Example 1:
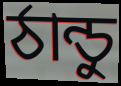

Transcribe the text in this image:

ঠান্ডু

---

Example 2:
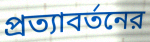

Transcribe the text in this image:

প্রত্যাবর্তনের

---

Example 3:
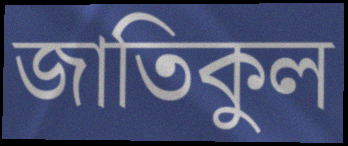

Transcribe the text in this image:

জাতিকুল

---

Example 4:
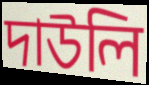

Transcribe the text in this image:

দাউলি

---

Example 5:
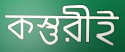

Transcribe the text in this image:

কস্তুরীই